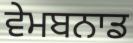
ਵੇਮਬਨਾਡ